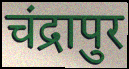
चंद्रापुर